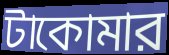
টাকোমার